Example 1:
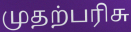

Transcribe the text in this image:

முதற்பரிசு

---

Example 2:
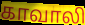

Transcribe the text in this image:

காவாலி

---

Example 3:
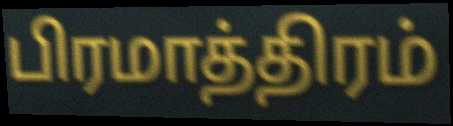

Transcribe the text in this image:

பிரமாத்திரம்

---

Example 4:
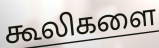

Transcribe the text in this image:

கூலிகளை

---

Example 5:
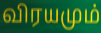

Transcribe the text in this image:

விரயமும்